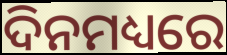
ଦିନମଧ୍ୟରେ